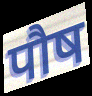
पौष